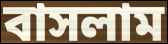
বাসলাম